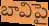
బావిపై